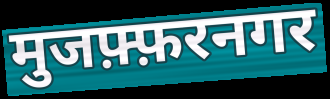
मुजफ़्फ़रनगर